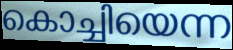
കൊച്ചിയെന്ന